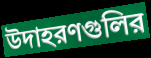
উদাহরণগুলির